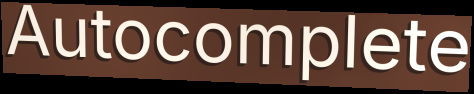
Autocomplete